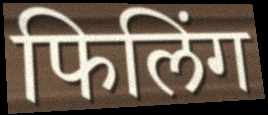
फिलिंग